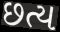
છત્ય